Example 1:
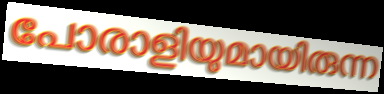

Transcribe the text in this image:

പോരാളിയുമായിരുന്ന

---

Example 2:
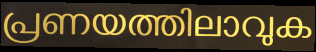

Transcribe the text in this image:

പ്രണയത്തിലാവുക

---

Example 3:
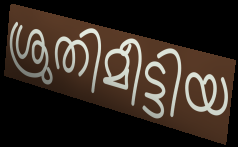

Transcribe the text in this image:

ശ്രുതിമീട്ടിയ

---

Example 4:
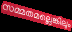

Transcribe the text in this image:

സമ്മതമല്ലെങ്കിലും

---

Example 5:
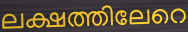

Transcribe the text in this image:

ലക്ഷത്തിലേറെ